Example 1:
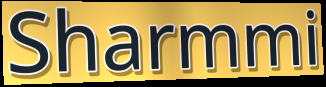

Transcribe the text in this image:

Sharmmi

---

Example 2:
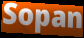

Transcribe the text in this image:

Sopan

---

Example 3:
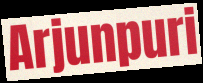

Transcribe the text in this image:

Arjunpuri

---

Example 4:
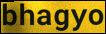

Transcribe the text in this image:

bhagyo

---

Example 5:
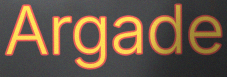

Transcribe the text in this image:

Argade